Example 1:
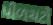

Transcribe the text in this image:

પીળચટો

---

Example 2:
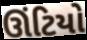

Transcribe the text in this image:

ઊંટિયો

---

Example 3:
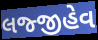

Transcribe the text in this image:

લજ્જીહેવ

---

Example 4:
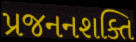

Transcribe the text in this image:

પ્રજનનશક્તિ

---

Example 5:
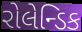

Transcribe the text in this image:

રોલેન્ડિક